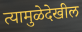
त्यामुळेदेखील